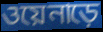
ওয়েনাড়ে